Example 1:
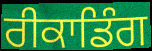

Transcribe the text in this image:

ਰੀਕਾਡਿੰਗ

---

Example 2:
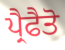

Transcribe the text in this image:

ਪ੍ਰੈਫੈਤੋ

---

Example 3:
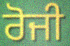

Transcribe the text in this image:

ਰੋਜੀ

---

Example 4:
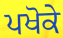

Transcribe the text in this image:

ਪਖੋਕੇ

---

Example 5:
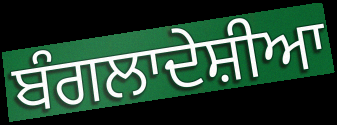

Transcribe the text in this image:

ਬੰਗਲਾਦੇਸ਼ੀਆ